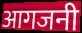
आगजनी